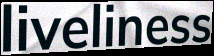
liveliness